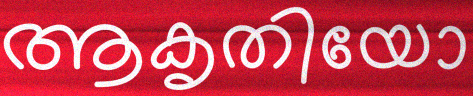
ആകൃതിയോ